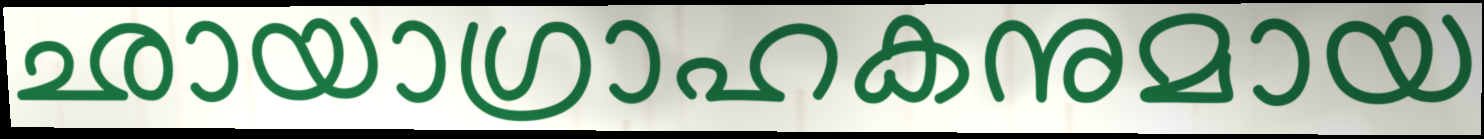
ഛായാഗ്രാഹകനുമായ